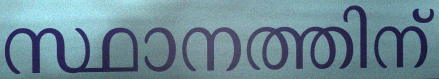
സ്ഥാനത്തിന്